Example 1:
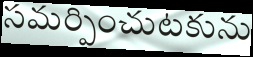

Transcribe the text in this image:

సమర్పించుటకును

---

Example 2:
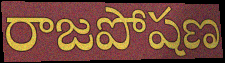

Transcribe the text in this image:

రాజపోషణ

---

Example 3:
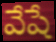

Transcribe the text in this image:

వేషే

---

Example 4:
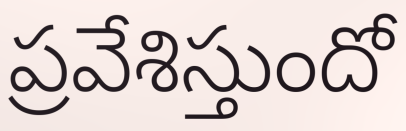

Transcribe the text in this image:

ప్రవేశిస్తుందో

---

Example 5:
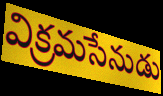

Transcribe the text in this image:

విక్రమసేనుడు